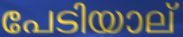
പേടിയാല്